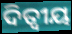
ଦିତ୍ୱୀୟ